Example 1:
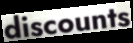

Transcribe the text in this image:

discounts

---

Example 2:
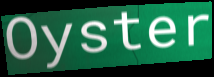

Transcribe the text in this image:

Oyster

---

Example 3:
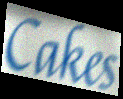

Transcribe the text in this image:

Cakes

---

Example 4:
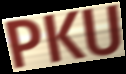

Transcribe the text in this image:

PKU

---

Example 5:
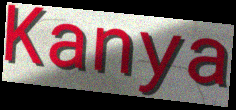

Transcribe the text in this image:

Kanya